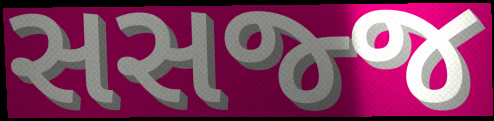
સસજ્જ